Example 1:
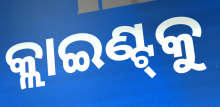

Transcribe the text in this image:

କ୍ଲାଇଣ୍ଟ୍‌କୁ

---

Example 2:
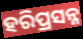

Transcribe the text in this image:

ହରିପ୍ରସନ୍ନ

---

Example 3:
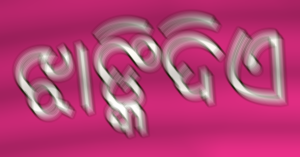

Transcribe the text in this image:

ଝାଙ୍କିଦିଏ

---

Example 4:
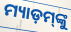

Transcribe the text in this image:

ମ୍ୟାଡ଼ମ୍‌ଙ୍କୁ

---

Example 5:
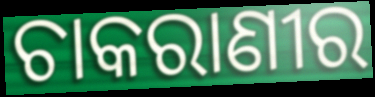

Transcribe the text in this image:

ଚାକରାଣୀର